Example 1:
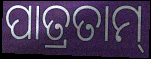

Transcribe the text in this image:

ପାତ୍ରତାମ୍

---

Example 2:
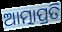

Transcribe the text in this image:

ଆତ୍ମାପ୍ରତି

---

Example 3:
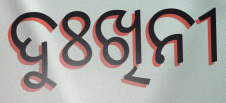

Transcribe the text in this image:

ଦୁଃଖିନୀ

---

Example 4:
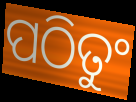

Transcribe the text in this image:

ପଠିତୁଂ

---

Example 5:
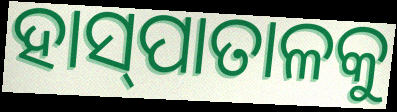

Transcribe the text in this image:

ହାସ୍‍ପାତାଳକୁ